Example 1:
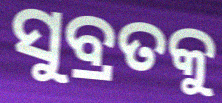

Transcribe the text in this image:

ସୁବ୍ରତକୁ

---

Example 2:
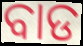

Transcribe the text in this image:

ବାଡ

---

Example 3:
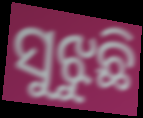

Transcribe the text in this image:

ସୁଝୁଛି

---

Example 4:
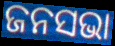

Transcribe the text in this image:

ଜନସଭା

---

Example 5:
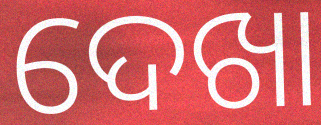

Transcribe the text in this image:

ଦେଖା